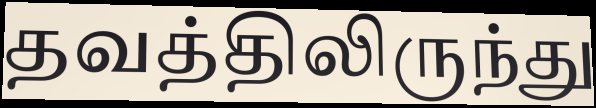
தவத்திலிருந்து